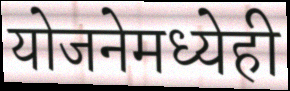
योजनेमध्येही